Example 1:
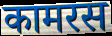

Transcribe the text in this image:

कामरस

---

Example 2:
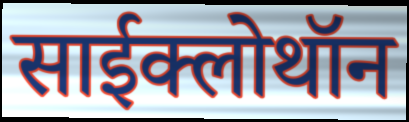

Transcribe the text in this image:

साईक्लोथॉन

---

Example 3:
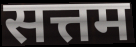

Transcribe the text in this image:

सत्तम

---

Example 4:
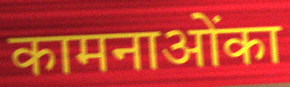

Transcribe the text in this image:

कामनाओंका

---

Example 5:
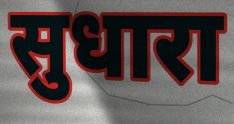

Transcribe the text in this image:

सुधारा